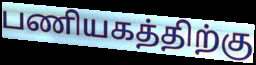
பணியகத்திற்கு